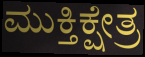
ಮುಕ್ತಿಕ್ಷೇತ್ರ